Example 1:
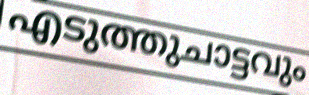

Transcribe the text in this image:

എടുത്തുചാട്ടവും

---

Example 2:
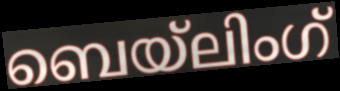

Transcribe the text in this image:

ബെയ്ലിംഗ്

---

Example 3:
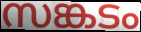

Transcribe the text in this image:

സങ്കടം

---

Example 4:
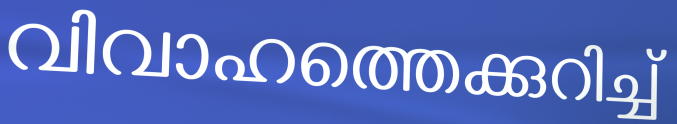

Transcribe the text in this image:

വിവാഹത്തെക്കുറിച്ച്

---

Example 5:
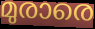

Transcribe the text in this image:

മുരാരെ